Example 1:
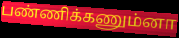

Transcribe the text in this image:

பண்ணிக்கணும்னா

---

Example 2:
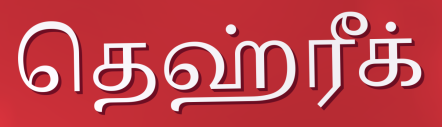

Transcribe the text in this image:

தெஹ்ரீக்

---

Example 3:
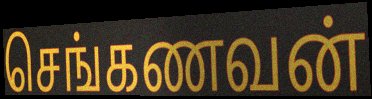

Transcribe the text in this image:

செங்கணவன்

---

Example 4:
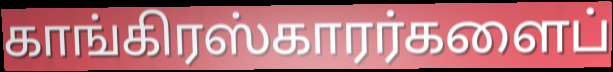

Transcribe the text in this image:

காங்கிரஸ்காரர்களைப்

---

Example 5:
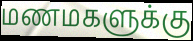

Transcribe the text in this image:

மணமகளுக்கு